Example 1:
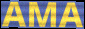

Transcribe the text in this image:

AMA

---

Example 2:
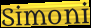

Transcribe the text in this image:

Simoni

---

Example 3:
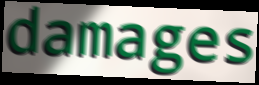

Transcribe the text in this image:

damages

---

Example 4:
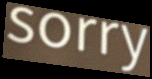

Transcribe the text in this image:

sorry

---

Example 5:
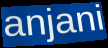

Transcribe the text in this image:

anjani